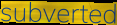
subverted